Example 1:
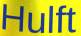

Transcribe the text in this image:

Hulft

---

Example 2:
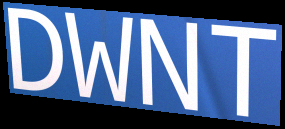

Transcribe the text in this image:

DWNT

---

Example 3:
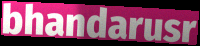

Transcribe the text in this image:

bhandarusr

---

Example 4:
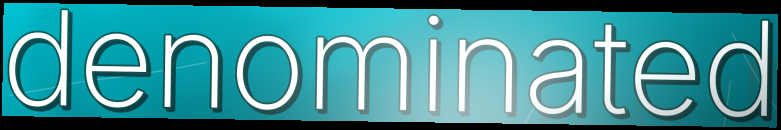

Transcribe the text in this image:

denominated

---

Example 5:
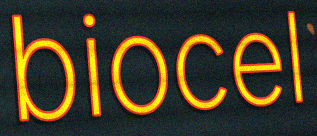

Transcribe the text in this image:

biocel